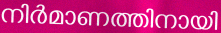
നിർമാണത്തിനായി